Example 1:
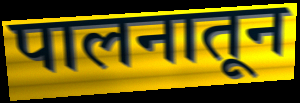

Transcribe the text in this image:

पालनातून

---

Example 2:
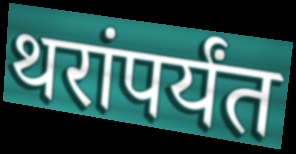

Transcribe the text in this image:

थरांपर्यंत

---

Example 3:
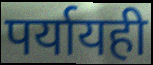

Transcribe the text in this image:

पर्यायही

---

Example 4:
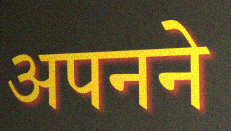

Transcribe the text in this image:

अपनने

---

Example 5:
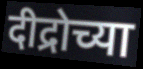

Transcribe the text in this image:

दीद्रोच्या